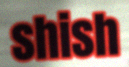
shish